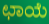
ಛಾಯೆ